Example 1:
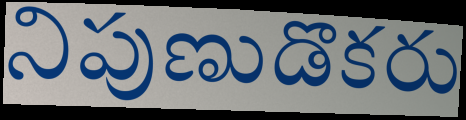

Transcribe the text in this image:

నిపుణుడొకరు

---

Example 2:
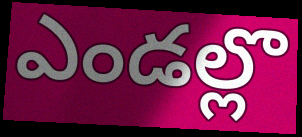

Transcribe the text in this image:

ఎండల్లొ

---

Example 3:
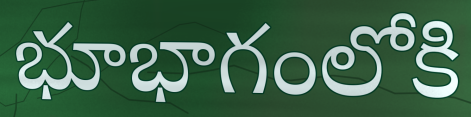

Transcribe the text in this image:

భూభాగంలోకి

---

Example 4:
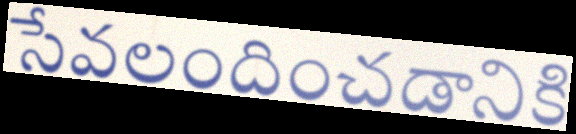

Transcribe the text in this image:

సేవలందించడానికి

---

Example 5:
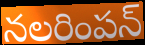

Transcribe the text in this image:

నలరింపన్